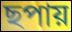
ছপায়